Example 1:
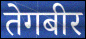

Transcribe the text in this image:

तेगबीर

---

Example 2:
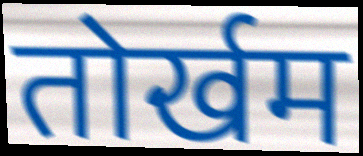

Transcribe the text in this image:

तोर्खम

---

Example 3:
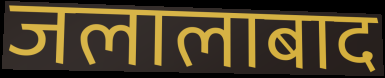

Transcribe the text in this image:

जलालाबाद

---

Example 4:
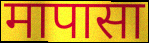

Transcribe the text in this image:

मापासा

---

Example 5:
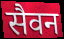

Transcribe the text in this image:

सैवन